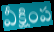
వీక్షింప